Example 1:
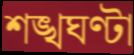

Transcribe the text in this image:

শঙ্খঘণ্টা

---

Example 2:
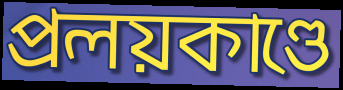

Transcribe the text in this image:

প্রলয়কাণ্ডে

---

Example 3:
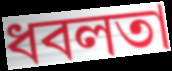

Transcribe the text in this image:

ধবলতা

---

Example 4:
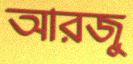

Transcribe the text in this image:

আরজু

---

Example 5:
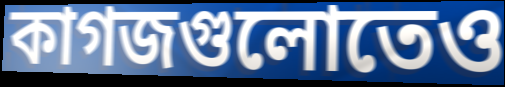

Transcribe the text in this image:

কাগজগুলোতেও